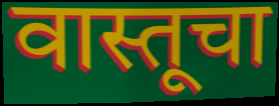
वास्तूचा